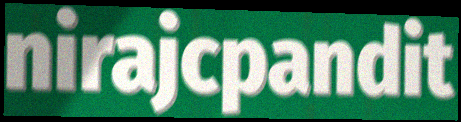
nirajcpandit